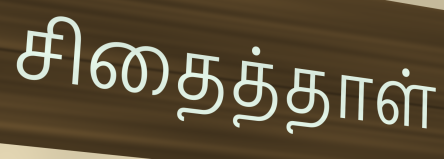
சிதைத்தாள்